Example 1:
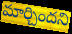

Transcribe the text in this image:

మార్చిందని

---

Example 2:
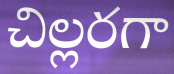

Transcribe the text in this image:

చిల్లరగా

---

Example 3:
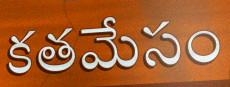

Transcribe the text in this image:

కతమేసం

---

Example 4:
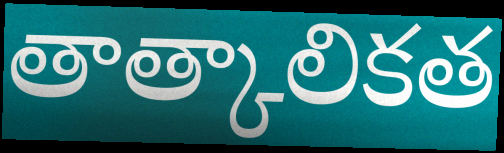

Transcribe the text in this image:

తాత్కాలికత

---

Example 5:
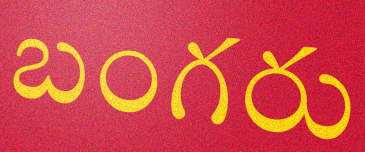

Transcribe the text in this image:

బంగరు